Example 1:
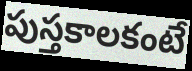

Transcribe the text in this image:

పుస్తకాలకంటే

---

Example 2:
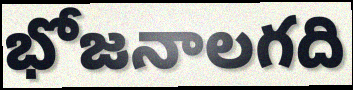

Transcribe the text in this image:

భోజనాలగది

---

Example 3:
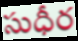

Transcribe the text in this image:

సుధీర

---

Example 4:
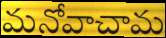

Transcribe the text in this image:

మనోవాచామ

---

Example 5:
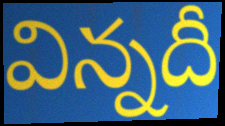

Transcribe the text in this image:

విన్నదీ